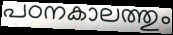
പഠനകാലത്തും